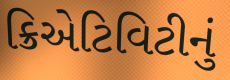
ક્રિએટિવિટીનું